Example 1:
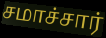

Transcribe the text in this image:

சமாச்சார்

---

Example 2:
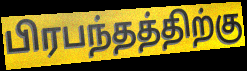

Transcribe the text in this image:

பிரபந்தத்திற்கு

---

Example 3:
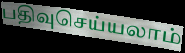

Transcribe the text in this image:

பதிவுசெய்யலாம்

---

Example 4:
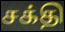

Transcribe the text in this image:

சக்தி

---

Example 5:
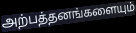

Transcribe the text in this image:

அற்பத்தனங்களையும்